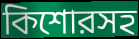
কিশোরসহ